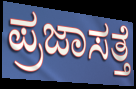
ಪ್ರಜಾಸತ್ತೆ